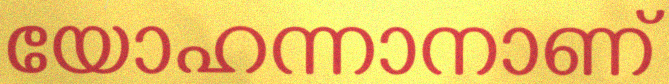
യോഹന്നാനാണ്